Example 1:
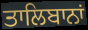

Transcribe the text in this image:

ਤਾਲਿਬਾਨਾਂ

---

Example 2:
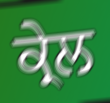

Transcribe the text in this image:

ਕ੍ਰੇਲ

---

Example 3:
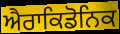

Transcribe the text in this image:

ਐਰਾਕਿਡੋਨਿਕ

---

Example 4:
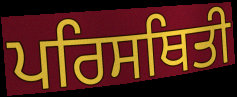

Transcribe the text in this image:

ਪਰਿਸਥਿਤੀ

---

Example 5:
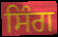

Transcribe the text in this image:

ਸਿੰਗ